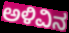
ಅಳಿವಿನ